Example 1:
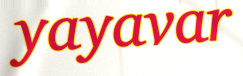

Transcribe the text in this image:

yayavar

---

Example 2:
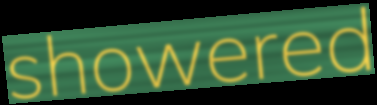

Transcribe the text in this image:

showered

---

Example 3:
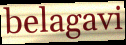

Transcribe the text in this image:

belagavi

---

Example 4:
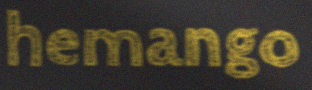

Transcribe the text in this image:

hemango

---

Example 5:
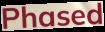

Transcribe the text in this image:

Phased